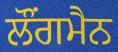
ਲੌਂਗਮੈਨ